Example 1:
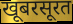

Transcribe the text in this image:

खूबरसूरत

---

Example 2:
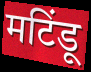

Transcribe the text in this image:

मटिंडू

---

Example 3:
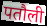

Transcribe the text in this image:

पतौली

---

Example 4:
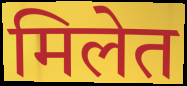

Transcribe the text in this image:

मिलेत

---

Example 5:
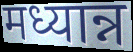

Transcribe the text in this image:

मध्यान्न